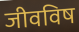
जीवविष